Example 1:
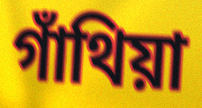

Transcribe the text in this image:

গাঁথিয়া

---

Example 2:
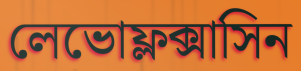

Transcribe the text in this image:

লেভোফ্লক্সাসিন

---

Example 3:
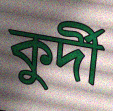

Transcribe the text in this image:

কুর্দী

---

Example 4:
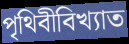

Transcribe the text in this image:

পৃথিবীবিখ্যাত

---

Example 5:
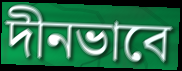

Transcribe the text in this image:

দীনভাবে